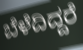
ಬೆಳೆದಿದ್ದರೆ